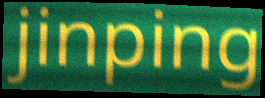
jinping